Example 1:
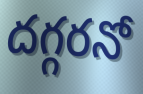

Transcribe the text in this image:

దగ్గరనో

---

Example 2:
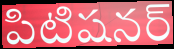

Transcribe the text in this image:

పిటిషనర్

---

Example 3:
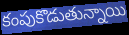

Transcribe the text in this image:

కంపుకొడుతున్నాయి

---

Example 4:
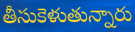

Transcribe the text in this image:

తీసుకెళుతున్నారు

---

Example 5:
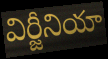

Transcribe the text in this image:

విర్జీనియా